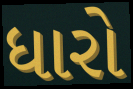
ધારો